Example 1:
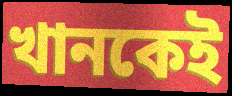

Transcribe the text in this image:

খানকেই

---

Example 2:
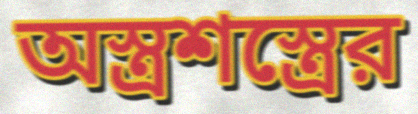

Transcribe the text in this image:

অস্ত্রশস্ত্রের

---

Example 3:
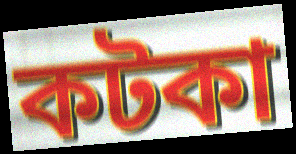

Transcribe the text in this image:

কটকা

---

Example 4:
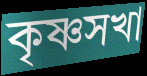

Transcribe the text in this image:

কৃষ্ণসখা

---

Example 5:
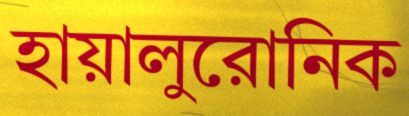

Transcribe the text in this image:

হায়ালুরোনিক